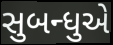
સુબન્ધુએ